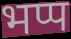
भप्प